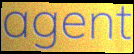
agent